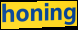
honing